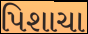
પિશાચા